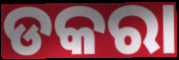
ଡକରା